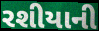
રશીયાની